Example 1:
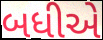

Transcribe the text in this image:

બધીએ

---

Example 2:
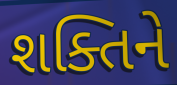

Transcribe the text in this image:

શક્તિને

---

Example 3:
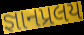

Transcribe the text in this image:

જ્ઞાનપ્રલય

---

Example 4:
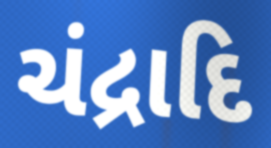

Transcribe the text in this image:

ચંદ્રાદિ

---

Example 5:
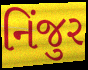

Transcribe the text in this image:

નિંજુર